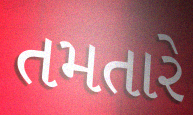
તમતારે